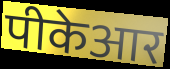
पीकेआर